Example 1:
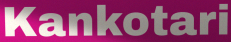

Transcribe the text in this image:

Kankotari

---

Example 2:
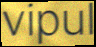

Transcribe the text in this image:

vipul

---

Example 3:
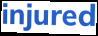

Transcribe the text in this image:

injured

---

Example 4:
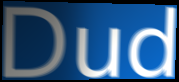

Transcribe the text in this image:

Dud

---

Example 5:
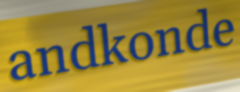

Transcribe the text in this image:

andkonde